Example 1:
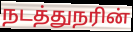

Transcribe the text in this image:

நடத்துநரின்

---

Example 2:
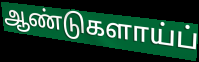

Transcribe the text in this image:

ஆண்டுகளாய்ப்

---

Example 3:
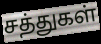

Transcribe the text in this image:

சத்துகள்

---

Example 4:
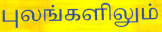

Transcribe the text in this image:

புலங்களிலும்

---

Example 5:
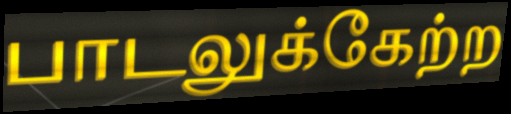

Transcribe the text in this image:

பாடலுக்கேற்ற